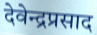
देवेन्द्रप्रसाद